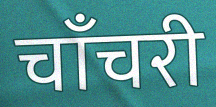
चाँचरी